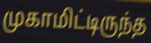
முகாமிட்டிருந்த